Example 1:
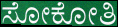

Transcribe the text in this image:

ಸೋಕೋತಿ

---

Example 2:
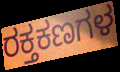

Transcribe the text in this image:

ರಕ್ತಕಣಗಳ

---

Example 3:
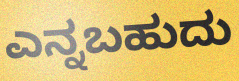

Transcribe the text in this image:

ಎನ್ನಬಹುದು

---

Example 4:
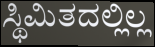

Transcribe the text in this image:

ಸ್ಥಿಮಿತದಲ್ಲಿಲ್ಲ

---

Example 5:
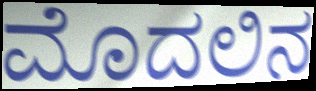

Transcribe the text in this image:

ಮೊದಲಿನ